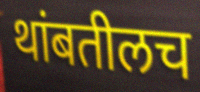
थांबतीलच